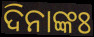
ଦିନାଙ୍କଃ